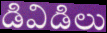
డివిడిలు